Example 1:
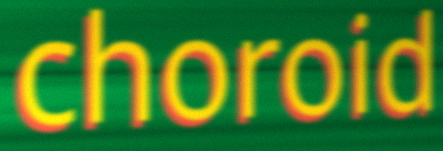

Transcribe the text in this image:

choroid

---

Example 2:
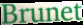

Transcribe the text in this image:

Brunet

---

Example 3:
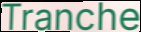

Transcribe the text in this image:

Tranche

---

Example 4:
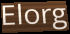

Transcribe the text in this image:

Elorg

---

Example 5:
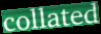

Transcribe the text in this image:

collated